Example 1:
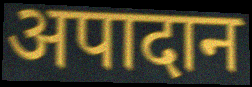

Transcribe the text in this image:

अपादान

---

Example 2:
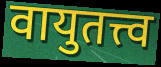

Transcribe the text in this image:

वायुतत्त्व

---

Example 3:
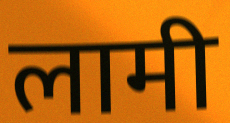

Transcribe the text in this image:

लामी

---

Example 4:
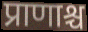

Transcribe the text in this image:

प्राणाश्च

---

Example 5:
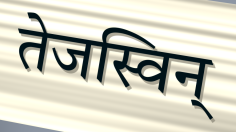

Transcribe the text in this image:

तेजस्विन्